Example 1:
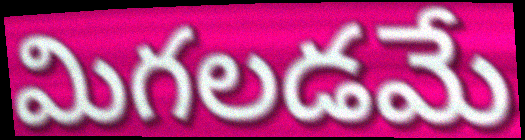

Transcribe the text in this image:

మిగలడమే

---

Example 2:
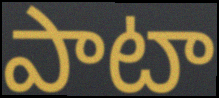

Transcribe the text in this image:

పాటా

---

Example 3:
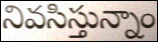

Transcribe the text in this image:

నివసిస్తున్నాం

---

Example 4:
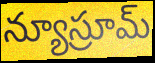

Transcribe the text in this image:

న్యూస్రూమ్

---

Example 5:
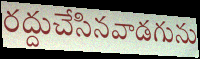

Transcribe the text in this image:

రద్దుచేసినవాడగును